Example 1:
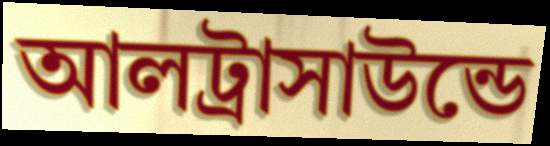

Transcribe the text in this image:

আলট্রাসাউন্ডে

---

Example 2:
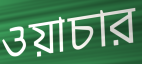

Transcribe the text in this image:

ওয়াচার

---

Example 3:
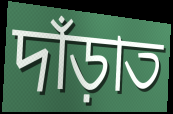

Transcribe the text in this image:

দাঁড়াত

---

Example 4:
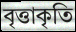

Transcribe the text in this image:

বৃত্তাকৃতি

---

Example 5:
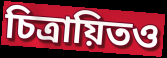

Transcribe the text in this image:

চিত্রায়িতও